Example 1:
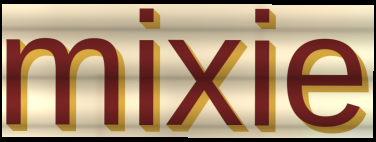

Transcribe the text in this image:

mixie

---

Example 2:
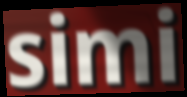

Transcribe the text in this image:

simi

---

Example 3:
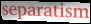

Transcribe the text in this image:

separatism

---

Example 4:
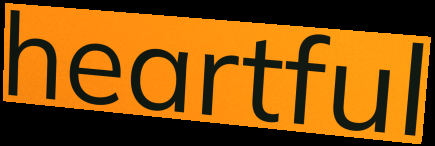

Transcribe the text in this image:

heartful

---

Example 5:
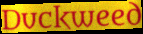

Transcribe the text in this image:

Duckweed